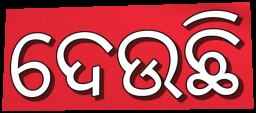
ଦେଉଛି